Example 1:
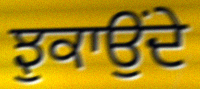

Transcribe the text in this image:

ਝੁਕਾਉਂਦੇ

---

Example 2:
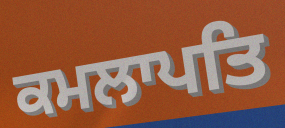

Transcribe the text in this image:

ਕਮਲਾਪਤਿ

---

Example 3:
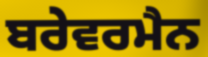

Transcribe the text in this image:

ਬਰੇਵਰਮੈਨ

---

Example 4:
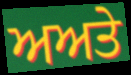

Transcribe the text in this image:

ਅਅਤੇ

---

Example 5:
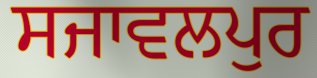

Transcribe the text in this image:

ਸਜਾਵਲਪੁਰ